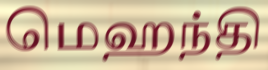
மெஹந்தி